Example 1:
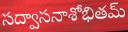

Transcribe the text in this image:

సద్వాసనాశోభితమ్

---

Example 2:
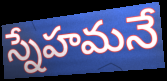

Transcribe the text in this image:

స్నేహమనే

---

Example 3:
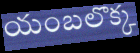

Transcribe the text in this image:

యంబలొక్క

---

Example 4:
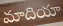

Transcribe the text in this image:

మాదియా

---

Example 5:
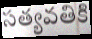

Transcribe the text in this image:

సత్యవతికి